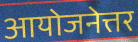
आयोजनेत्तर